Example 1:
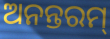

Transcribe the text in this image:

ଅନନ୍ତରମ୍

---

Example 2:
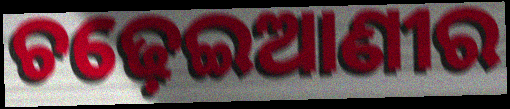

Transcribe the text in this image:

ଚଢ଼େଇଆଣୀର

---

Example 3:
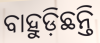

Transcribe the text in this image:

ବାହୁଡ଼ିଛନ୍ତି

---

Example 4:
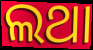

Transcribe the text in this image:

ଲଥା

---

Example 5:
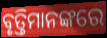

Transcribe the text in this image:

ବୃତ୍ତିମାନଙ୍କରେ